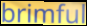
brimful